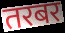
तरबर